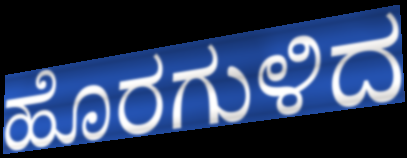
ಹೊರಗುಳಿದ